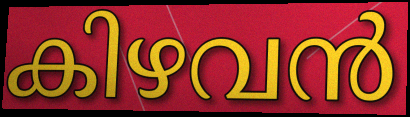
കിഴവൻ